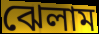
ঝেলাম